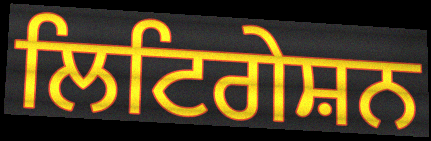
ਲਿਟਿਗੇਸ਼ਨ